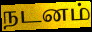
நடனம்